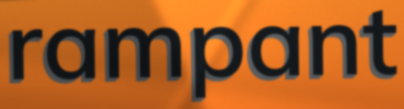
rampant